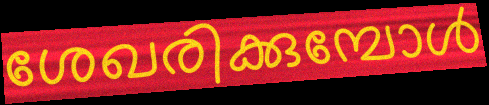
ശേഖരിക്കുമ്പോൾ